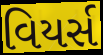
વિયર્સ